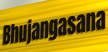
Bhujangasana